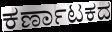
ಕರ್ಣಾಟಕದ